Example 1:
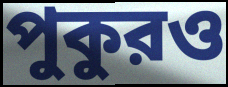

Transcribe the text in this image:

পুকুরও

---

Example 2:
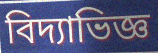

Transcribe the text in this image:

বিদ্যাভিজ্ঞ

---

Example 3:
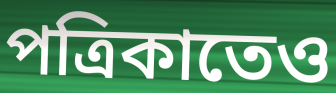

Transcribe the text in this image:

পত্রিকাতেও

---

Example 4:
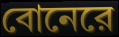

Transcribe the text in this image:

বোনেরে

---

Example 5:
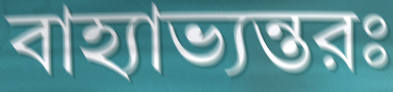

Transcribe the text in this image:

বাহ্যাভ্যন্তরঃ